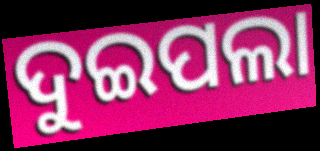
ଦୁଇପଲା